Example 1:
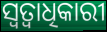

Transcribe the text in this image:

ସ୍ଵତ୍ୱାଧିକାରୀ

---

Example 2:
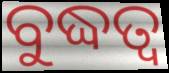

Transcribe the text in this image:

ବୁଦ୍ଧତ୍ୱ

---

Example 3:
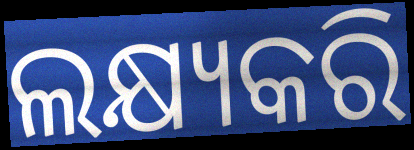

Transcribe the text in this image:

ଲକ୍ଷ୍ୟକରି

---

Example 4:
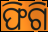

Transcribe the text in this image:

ଫିଗି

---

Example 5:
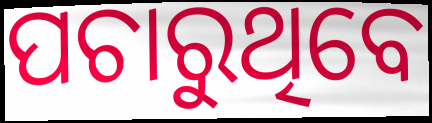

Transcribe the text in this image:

ପଚାରୁଥିବେ